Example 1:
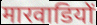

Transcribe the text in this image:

मारवाडियों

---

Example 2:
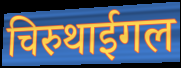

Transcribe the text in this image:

चिरुथाईगल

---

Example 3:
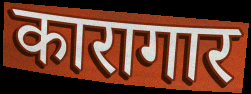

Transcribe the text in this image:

कारागार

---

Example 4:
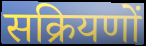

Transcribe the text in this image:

सक्रियणों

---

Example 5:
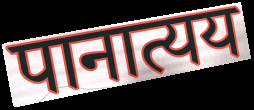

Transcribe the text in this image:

पानात्यय